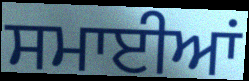
ਸਮਾਈਆਂ